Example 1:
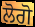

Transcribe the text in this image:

ਲੋਗੋ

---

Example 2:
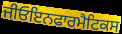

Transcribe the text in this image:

ਜੀਓਇਨਫਾਰਮੈਟਿਕਸ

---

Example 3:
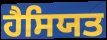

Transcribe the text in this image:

ਹੈਸਿਯਤ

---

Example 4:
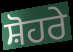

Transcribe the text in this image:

ਸ਼ੋਹਰੇ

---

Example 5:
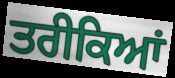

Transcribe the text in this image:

ਤਰੀਕਿਆਂ